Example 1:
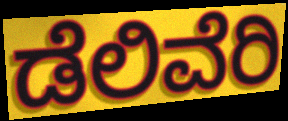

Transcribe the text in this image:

ಡೆಲಿವೆರಿ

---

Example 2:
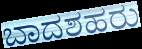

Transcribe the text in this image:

ಬಾದಶಹರು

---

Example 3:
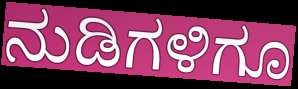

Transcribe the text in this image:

ನುಡಿಗಳಿಗೂ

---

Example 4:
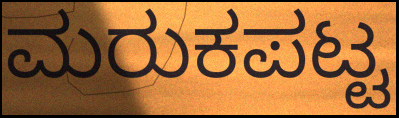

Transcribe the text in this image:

ಮರುಕಪಟ್ಟ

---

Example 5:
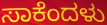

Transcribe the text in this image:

ಸಾಕೆಂದಳು